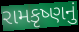
રામકૃષ્ણનું